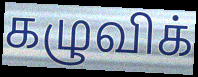
கழுவிக்